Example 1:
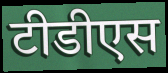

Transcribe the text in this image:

टीडीएस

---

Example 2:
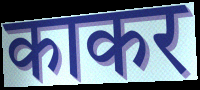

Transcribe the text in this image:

काकर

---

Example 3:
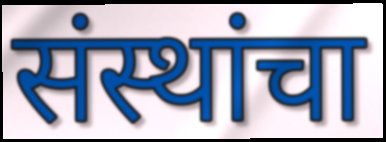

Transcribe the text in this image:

संस्थांचा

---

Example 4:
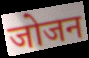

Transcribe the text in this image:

जोजन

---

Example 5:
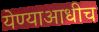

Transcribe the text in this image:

येण्याआधीच